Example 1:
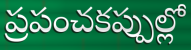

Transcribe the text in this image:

ప్రపంచకప్పుల్లో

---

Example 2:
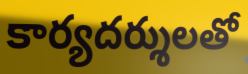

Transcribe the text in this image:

కార్యదర్శులతో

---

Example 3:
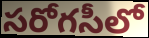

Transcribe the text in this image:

సరోగసీలో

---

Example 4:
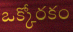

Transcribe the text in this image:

ఒక్కోరకం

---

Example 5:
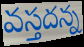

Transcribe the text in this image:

వస్తదన్న